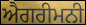
ਐਗਰੀਮਨੀ